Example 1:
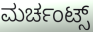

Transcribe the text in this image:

ಮರ್ಚಂಟ್ಸ್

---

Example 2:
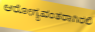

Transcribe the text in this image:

ಆರೋಗ್ಯವಂತರಾಗಿರಲಿ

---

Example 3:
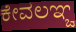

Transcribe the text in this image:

ಕೇವಲಞ್ಚ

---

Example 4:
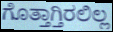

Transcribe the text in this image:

ಗೊತ್ತಾಗ್ತಿರಲಿಲ್ಲ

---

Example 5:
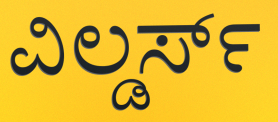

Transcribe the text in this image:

ವಿಲ್ಡರ್ಸ್